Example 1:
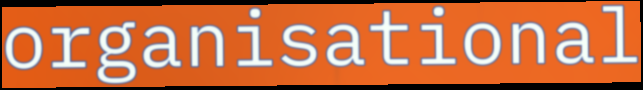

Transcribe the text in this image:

organisational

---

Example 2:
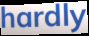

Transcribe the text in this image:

hardly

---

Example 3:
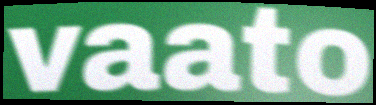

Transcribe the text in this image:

vaato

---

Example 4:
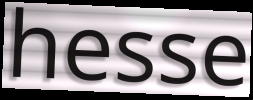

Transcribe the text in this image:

hesse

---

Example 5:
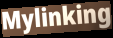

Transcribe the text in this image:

Mylinking